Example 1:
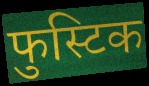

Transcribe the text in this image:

फुस्टिक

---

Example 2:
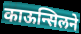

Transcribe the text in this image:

काऊन्सिलने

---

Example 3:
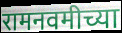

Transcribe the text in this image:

रामनवमीच्या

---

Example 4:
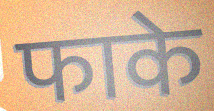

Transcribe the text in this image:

फाके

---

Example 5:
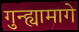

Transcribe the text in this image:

गुन्ह्यामागे